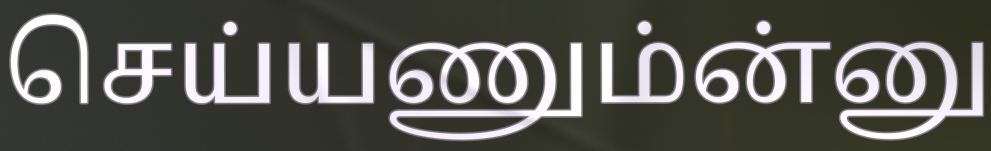
செய்யணும்ன்னு